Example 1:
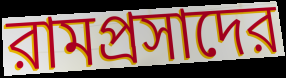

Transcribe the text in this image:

রামপ্রসাদের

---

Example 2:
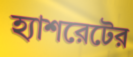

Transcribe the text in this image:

হ্যাশরেটের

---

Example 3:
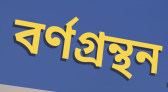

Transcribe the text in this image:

বর্ণগ্রন্থন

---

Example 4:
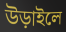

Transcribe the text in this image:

উড়াইলে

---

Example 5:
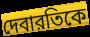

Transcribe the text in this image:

দেবারতিকে